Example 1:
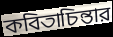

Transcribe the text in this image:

কবিতাচিন্তার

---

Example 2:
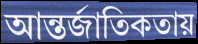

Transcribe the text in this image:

আন্তর্জাতিকতায়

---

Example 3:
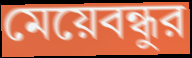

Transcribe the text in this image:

মেয়েবন্ধুর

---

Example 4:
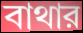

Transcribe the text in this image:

বাথার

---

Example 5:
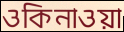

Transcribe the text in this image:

ওকিনাওয়া